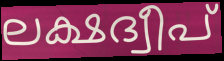
ലക്ഷദ്വീപ്